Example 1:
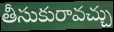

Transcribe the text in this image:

తీసుకురావచ్చు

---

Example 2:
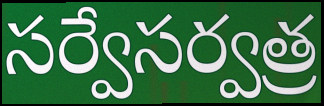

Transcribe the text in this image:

సర్వేసర్వత్ర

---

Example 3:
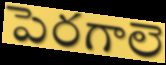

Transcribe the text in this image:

పెరగాలె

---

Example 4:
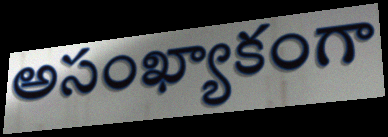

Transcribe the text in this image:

అసంఖ్యాకంగా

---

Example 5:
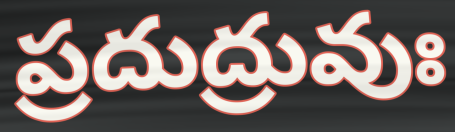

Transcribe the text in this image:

ప్రదుద్రువుః